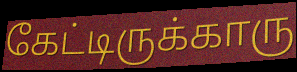
கேட்டிருக்காரு